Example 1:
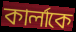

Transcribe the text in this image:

কার্লাকে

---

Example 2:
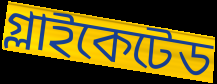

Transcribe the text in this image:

গ্লাইকেটেড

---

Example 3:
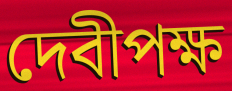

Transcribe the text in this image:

দেবীপক্ষ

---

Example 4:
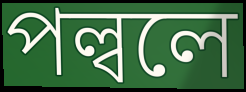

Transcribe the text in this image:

পল্বলে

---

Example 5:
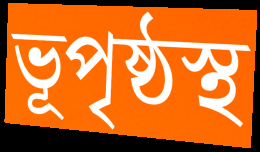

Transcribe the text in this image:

ভূপৃষ্ঠস্থ